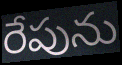
రేపును